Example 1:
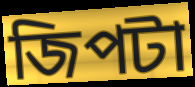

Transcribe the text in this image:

জিপটা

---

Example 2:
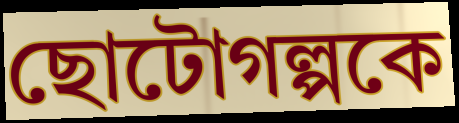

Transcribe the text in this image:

ছোটোগল্পকে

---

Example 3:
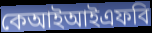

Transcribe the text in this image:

কেআইআইএফবি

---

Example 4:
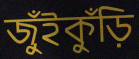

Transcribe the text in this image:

জুঁইকুঁড়ি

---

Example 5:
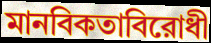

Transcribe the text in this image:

মানবিকতাবিরোধী